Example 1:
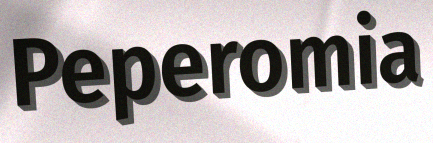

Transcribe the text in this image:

Peperomia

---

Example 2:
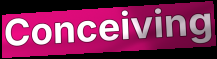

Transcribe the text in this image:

Conceiving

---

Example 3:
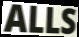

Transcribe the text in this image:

ALLS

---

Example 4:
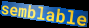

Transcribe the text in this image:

semblable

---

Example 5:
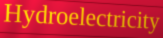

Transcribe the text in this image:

Hydroelectricity